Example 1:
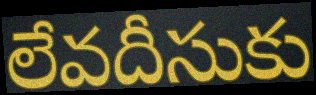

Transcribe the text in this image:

లేవదీసుకు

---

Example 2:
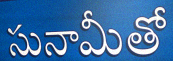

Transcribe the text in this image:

సునామీతో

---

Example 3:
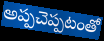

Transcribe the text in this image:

అప్పచెప్పటంతో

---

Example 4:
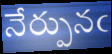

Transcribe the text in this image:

నేర్పునఁ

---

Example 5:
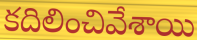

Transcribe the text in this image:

కదిలించివేశాయి